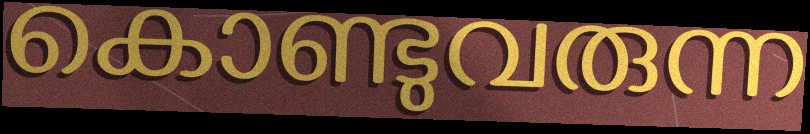
കൊണ്ടുവരുന്ന